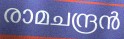
രാമചന്ദ്രൻ